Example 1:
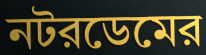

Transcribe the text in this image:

নটরডেমের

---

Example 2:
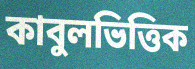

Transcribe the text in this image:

কাবুলভিত্তিক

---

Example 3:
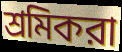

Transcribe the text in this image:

শ্রমিকরা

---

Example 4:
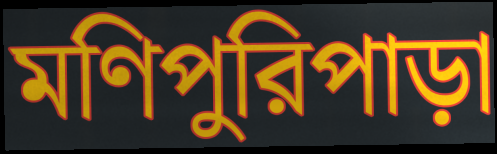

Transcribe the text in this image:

মণিপুরিপাড়া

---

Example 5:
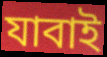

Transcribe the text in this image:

যাবাই